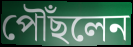
পৌঁছলেন